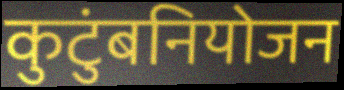
कुटुंबनियोजन